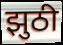
झुठी